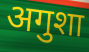
अगुशा